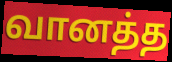
வானத்த